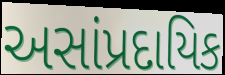
અસાંપ્રદાયિક